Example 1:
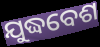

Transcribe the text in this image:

ଯୁଦ୍ଧବେଶ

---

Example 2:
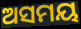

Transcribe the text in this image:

ଅସମୟ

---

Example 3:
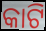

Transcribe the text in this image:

କାଟି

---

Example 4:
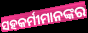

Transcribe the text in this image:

ସହକର୍ମୀମାନଙ୍କର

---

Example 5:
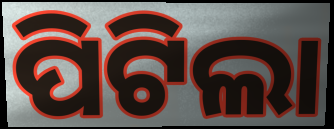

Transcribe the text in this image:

ପିଟିଲା